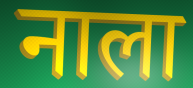
नाला